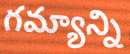
గమ్యాన్ని